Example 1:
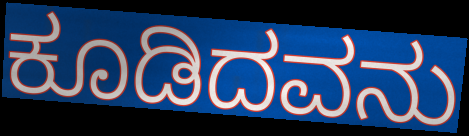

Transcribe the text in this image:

ಕೂಡಿದವನು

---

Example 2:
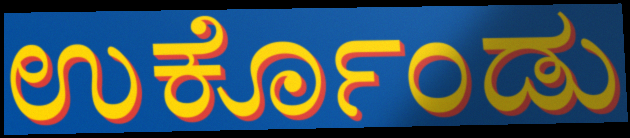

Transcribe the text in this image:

ಉರ್ಕೊಂಡು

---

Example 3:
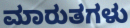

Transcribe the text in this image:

ಮಾರುತಗಳು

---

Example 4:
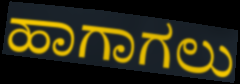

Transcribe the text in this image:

ಹಾಗಾಗಲು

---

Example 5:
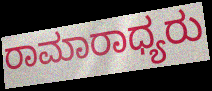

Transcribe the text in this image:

ರಾಮಾರಾಧ್ಯರು